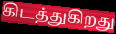
கிடத்துகிறது